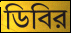
ডিবির